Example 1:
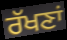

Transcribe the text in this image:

ਰੱਖਣਾਂ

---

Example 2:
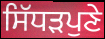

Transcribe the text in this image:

ਸਿੱਧੜਪੁਣੇ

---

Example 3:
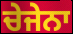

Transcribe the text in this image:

ਚੇਜੇਨਾ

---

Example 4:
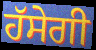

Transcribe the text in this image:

ਹੱਸੇਗੀ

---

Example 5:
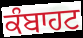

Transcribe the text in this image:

ਕੰਬਾਹਟ